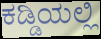
ಕಡ್ಡಿಯಲ್ಲಿ